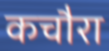
कचौरा